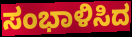
ಸಂಭಾಳಿಸಿದ